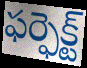
ఫర్ఫెక్ట్